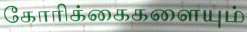
கோரிக்கைகளையும்